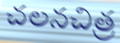
చలనచిత్ర